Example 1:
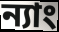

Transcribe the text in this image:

ন্যাং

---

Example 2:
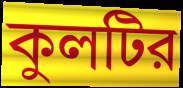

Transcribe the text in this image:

কুলটির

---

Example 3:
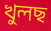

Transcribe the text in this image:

খুলছ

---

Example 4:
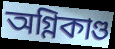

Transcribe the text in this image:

অগ্নিকাণ্ড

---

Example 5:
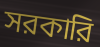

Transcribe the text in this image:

সরকারি